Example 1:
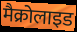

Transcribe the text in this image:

मैक्रोलाइड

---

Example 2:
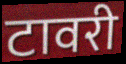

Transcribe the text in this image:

टावरी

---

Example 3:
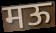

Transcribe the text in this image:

मऊ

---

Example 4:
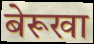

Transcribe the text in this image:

बेरूखा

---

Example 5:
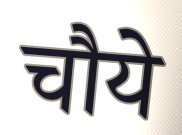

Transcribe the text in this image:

चौये